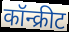
कॉन्क्रीट